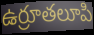
ఉర్రూతలూపి